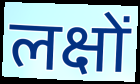
लक्षों